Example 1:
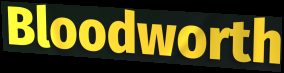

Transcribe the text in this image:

Bloodworth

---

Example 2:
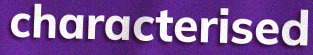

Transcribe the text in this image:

characterised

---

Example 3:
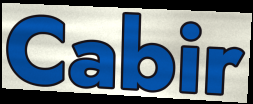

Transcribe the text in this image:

Cabir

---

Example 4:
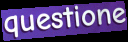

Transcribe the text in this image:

questione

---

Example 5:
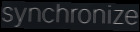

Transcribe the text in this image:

synchronize